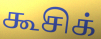
கூசிக்